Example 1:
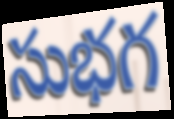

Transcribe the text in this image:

సుభగ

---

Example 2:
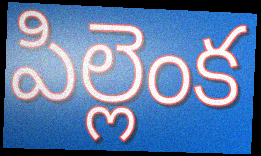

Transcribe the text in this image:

పిల్లెంక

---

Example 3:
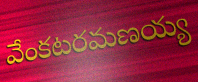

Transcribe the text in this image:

వేంకటరమణయ్య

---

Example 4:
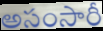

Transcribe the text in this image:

అసంసారీ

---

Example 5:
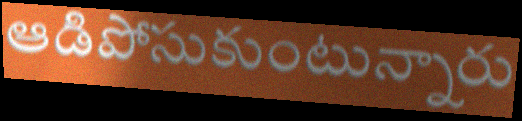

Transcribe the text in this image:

ఆడిపోసుకుంటున్నారు